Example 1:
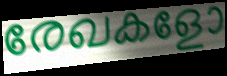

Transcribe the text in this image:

രേഖകളോ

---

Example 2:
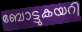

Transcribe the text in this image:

ബോട്ടുകയറി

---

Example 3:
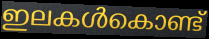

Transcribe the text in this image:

ഇലകൾകൊണ്ട്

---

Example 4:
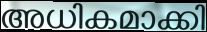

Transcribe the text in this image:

അധികമാക്കി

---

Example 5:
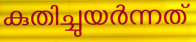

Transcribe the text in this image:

കുതിച്ചുയർന്നത്